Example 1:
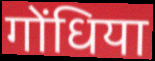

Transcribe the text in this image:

गोंधिया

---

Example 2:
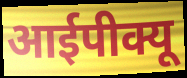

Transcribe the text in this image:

आईपीक्यू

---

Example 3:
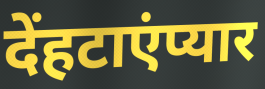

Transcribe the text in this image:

देंहटाएंप्यार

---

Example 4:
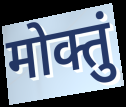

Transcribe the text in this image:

मोक्तुं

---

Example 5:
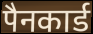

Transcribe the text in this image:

पैनकार्ड